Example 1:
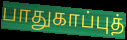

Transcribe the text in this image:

பாதுகாப்புத்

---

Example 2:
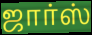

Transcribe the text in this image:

ஜார்ஸ்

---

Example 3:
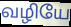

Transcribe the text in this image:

வழியே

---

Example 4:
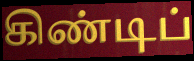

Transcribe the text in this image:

கிண்டிப்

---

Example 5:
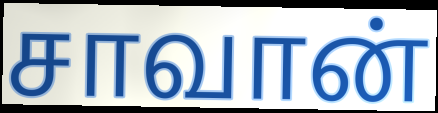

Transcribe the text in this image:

சாவான்